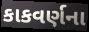
કાકવર્ણના